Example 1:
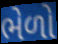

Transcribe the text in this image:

ભેળો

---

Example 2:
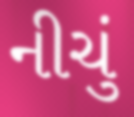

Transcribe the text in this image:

નીચું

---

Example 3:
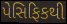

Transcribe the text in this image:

પેસિફિકથી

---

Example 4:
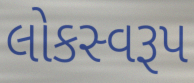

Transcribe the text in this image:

લોકસ્વરૂપ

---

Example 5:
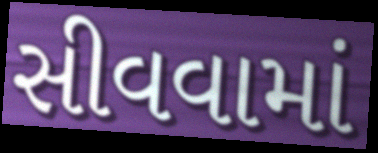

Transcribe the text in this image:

સીવવામાં